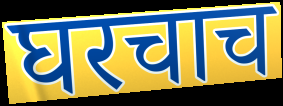
घरचाच